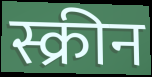
स्क्रीन